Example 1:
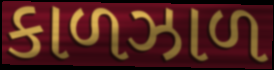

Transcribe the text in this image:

કાળઝાળ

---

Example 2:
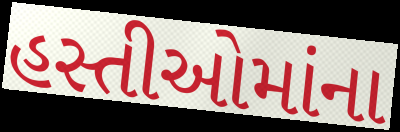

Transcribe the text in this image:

હસ્તીઓમાંના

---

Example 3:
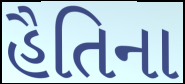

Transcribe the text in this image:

હૈતિના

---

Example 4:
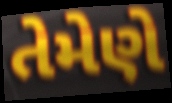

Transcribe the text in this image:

તેમેણે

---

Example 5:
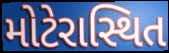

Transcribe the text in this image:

મોટેરાસ્થિત